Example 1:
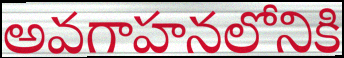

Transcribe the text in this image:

అవగాహనలోనికి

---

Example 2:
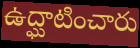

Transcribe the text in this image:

ఉద్ఘాటించారు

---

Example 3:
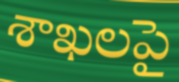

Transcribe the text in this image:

శాఖలపై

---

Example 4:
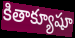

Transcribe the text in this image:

కితాక్యూషూ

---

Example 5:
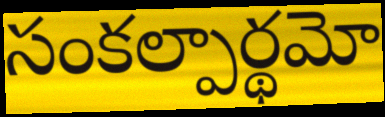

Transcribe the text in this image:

సంకల్పార్థమో